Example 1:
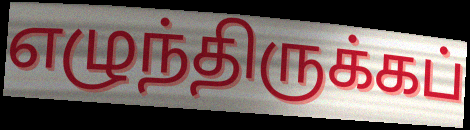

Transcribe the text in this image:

எழுந்திருக்கப்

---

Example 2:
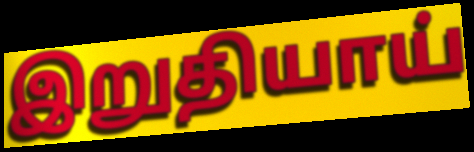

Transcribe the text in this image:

இறுதியாய்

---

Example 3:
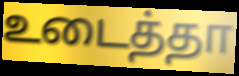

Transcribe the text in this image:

உடைத்தா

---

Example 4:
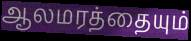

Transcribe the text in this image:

ஆலமரத்தையும்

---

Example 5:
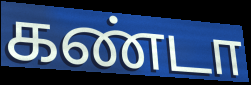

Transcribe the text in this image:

கண்டா